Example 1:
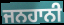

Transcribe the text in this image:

ਜਨਹਾਨੀ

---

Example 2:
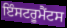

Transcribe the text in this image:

ਇੰਸਟਰੂਮੈਂਟਸ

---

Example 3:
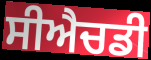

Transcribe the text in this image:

ਸੀਐਚਡੀ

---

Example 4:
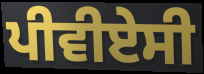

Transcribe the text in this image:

ਪੀਵੀਏਸੀ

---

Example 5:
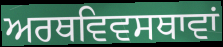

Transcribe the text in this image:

ਅਰਥਵਿਵਸਥਾਵਾਂ